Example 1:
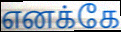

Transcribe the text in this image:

எனக்கே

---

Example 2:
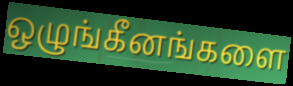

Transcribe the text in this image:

ஒழுங்கீனங்களை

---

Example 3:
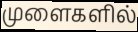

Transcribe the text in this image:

முளைகளில்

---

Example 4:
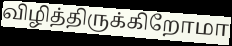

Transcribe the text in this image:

விழித்திருக்கிறோமா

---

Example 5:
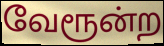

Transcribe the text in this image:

வேரூன்ற